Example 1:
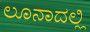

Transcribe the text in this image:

ಲೂನಾದಲ್ಲಿ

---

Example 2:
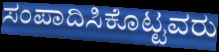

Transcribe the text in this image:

ಸಂಪಾದಿಸಿಕೊಟ್ಟವರು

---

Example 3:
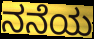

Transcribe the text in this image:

ನನೆಯ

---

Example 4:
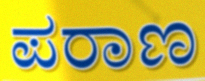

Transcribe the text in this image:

ಪರಾಣ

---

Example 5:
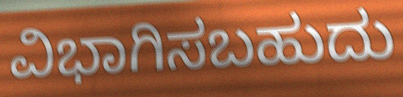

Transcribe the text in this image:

ವಿಭಾಗಿಸಬಹುದು